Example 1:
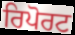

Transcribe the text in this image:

ਰਿਪੋਰਟ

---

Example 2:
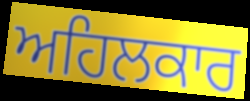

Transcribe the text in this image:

ਅਹਿਲਕਾਰ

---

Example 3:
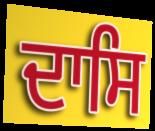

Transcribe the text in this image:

ਦਾਸਿ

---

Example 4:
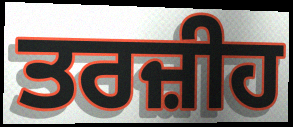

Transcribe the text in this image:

ਤਰਜ਼ੀਹ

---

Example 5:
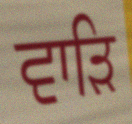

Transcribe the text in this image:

ਵਾੜਿ